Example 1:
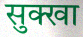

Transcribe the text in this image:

सुक्खा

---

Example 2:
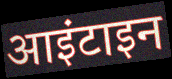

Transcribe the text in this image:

आइंटाइन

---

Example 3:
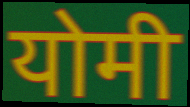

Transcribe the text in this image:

योमी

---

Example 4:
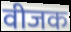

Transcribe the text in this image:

वीजक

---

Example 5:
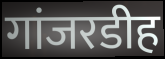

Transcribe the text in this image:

गांजरडीह